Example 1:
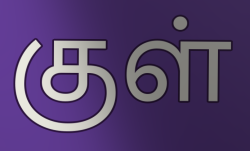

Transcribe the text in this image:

குள்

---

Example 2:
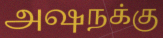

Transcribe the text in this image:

அஷநக்கு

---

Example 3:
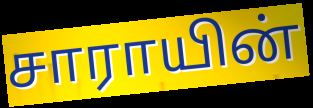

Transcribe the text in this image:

சாராயின்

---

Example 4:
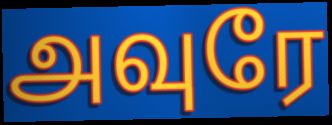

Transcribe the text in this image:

அவுரே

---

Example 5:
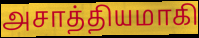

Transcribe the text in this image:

அசாத்தியமாகி